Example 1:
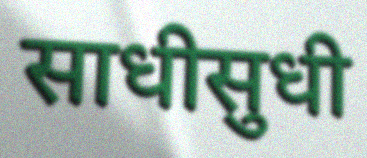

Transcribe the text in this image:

साधीसुधी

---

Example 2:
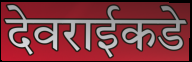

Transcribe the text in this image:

देवराईकडे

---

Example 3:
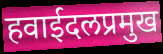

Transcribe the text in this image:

हवाईदलप्रमुख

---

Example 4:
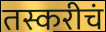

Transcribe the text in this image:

तस्करीचं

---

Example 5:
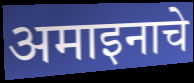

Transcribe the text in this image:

अमाइनाचे